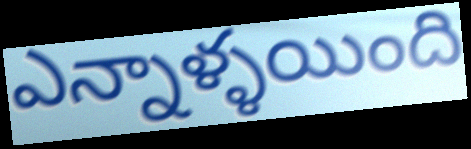
ఎన్నాళ్ళయింది